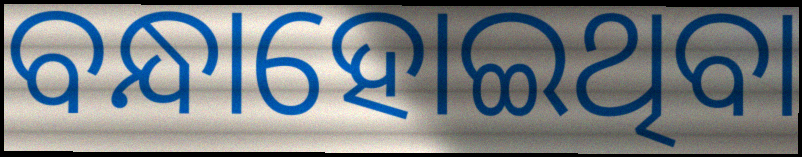
ବନ୍ଧାହୋଇଥିବା